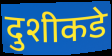
दुशीकडे